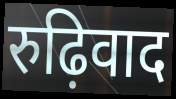
रुढ़िवाद